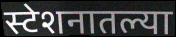
स्टेशनातल्या